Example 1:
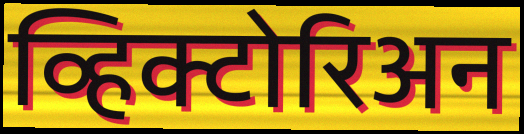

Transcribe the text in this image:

व्हिक्टोरिअन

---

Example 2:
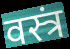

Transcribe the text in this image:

वस्त्रं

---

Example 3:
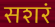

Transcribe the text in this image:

सशरं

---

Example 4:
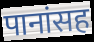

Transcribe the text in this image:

पानांसह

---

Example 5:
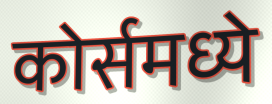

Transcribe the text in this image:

कोर्समध्ये